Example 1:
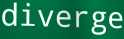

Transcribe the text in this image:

diverge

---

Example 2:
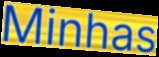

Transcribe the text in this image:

Minhas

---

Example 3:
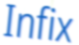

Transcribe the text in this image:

Infix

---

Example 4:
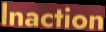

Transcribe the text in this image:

lnaction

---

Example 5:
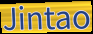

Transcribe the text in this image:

Jintao